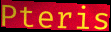
Pteris